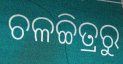
ଚଳଚ୍ଚିତ୍ରରୁ